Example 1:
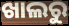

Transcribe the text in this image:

ଖାଲରୁ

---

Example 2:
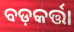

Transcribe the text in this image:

ବଡ଼କର୍ତ୍ତା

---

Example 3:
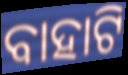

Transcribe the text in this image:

ବାହାଟି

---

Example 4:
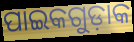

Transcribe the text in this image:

ପାଇକଗୁଡ଼ାକ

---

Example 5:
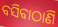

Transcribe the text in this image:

ବସିବାଠାଣି